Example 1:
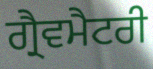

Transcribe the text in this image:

ਗ੍ਰੈਵਮੈਟਰੀ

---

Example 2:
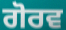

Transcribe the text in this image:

ਗੋਰਵ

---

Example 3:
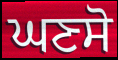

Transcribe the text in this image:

ਘਣਸੋ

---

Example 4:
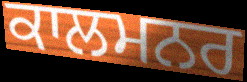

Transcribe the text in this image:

ਕਾਲਮਨਰ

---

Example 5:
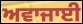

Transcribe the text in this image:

ਅਵਾਜਾਈ